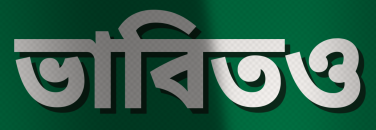
ভাবিতও